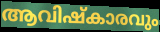
ആവിഷ്കാരവും